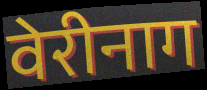
वेरीनाग